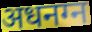
अधनग्न